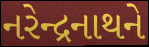
નરેન્દ્રનાથને